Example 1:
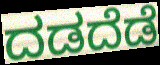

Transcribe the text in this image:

ದಡದೆಡೆ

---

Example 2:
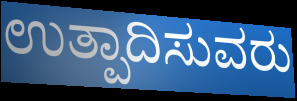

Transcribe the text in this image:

ಉತ್ಪಾದಿಸುವರು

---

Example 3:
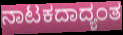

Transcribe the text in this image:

ನಾಟಕದಾದ್ಯಂತ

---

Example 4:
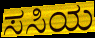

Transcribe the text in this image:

ಸಸಿಯ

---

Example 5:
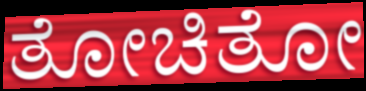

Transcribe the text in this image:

ತೋಚಿತೋ